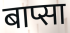
बाप्सा